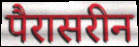
पैरासरीन